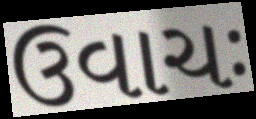
ઉવાચઃ